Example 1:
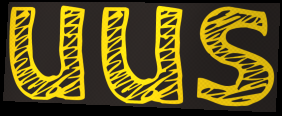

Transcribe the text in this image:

uus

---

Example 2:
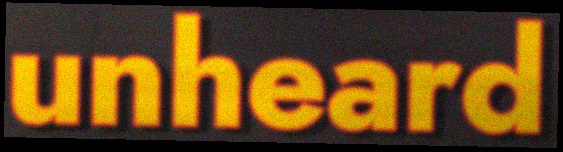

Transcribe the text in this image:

unheard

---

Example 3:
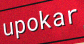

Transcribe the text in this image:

upokar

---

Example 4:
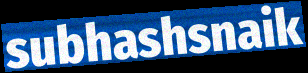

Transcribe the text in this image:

subhashsnaik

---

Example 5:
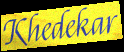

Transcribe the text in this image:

Khedekar